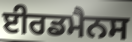
ਈਰਡਮੈਨਸ